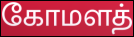
கோமளத்